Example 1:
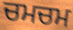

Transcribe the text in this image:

ਚਮਚਮ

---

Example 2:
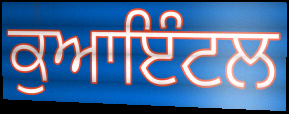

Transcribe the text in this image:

ਕੁਆਇੰਟਲ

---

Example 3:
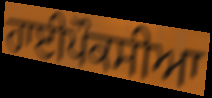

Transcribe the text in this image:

ਹਾਈਪੌਕਸੀਆ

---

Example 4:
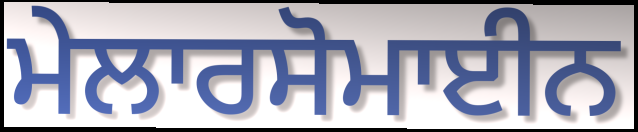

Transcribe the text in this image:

ਮੇਲਾਰਸੋਮਾਈਨ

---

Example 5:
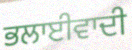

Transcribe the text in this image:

ਭਲਾਈਵਾਦੀ